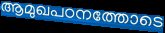
ആമുഖപഠനത്തോടെ